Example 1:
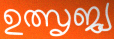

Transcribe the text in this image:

ഉത്സൃജ്യ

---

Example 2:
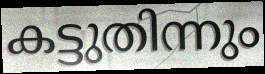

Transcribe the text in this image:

കട്ടുതിന്നും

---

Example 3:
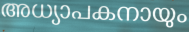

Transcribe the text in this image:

അധ്യാപകനായും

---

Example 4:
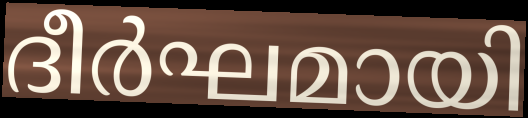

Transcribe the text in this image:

ദീർഘമായി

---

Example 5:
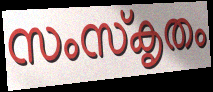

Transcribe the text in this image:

സംസ്കൃതം